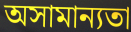
অসামান্যতা